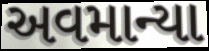
અવમાન્યા